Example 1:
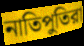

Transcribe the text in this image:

নাতিপুতিরা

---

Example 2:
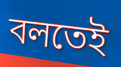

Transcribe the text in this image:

বলতেই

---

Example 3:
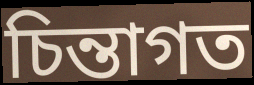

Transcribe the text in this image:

চিন্তাগত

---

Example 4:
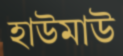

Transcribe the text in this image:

হাউমাউ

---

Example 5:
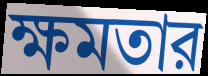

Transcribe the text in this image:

ক্ষমতার